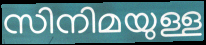
സിനിമയുള്ള